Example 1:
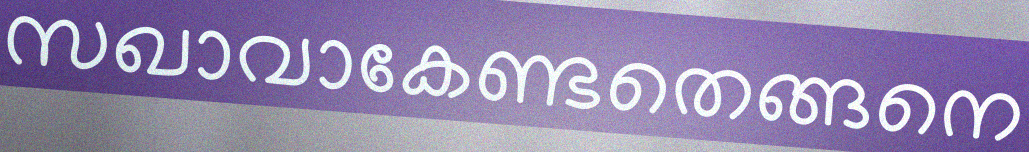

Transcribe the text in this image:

സഖാവാകേണ്ടതെങ്ങനെ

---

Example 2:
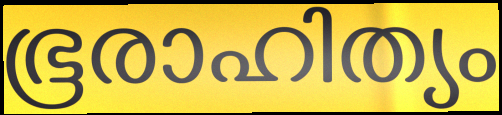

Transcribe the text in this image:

ഭൂരാഹിത്യം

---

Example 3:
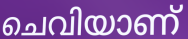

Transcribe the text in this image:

ചെവിയാണ്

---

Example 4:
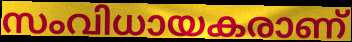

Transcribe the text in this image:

സംവിധായകരാണ്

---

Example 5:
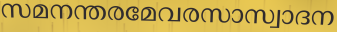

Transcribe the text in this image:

സമനന്തരമേവരസാസ്വാദന